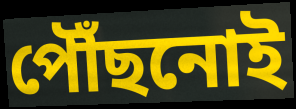
পৌঁছনোই